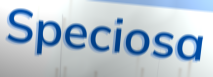
Speciosa